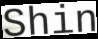
Shin